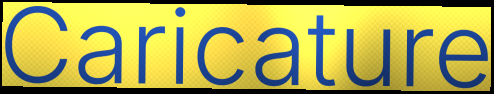
Caricature